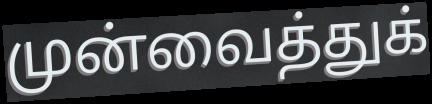
முன்வைத்துக்